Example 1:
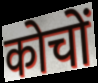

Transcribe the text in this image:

कोचों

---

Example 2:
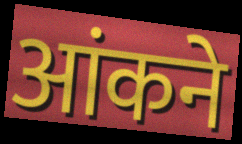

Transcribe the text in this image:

आंकने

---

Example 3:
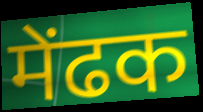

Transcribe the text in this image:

मेंढक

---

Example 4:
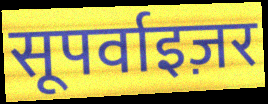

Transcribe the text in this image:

सूपर्वाइज़र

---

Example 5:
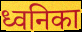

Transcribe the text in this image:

ध्वनिका